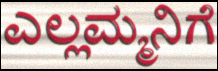
ಎಲ್ಲಮ್ಮನಿಗೆ